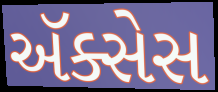
ઍક્સેસ